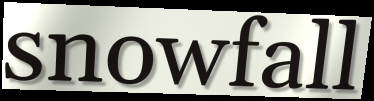
snowfall